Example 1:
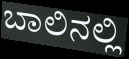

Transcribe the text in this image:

ಬಾಲಿನಲ್ಲಿ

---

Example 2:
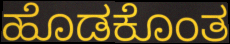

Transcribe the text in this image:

ಹೊಡಕೊಂತ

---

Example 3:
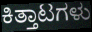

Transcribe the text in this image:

ಕಿತ್ತಾಟಗಳು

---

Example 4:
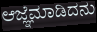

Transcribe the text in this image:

ಆಜ್ಞೆಮಾಡಿದನು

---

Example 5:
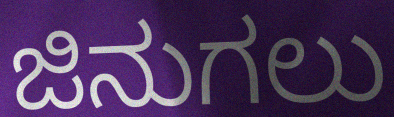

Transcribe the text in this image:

ಜಿನುಗಲು